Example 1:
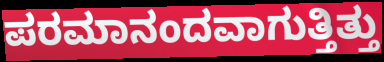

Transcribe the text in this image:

ಪರಮಾನಂದವಾಗುತ್ತಿತ್ತು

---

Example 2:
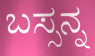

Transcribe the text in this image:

ಬಸ್ಸನ್ನ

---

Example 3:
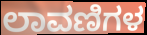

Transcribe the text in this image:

ಲಾವಣಿಗಳ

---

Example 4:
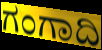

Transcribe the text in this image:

ಗಂಗಾದಿ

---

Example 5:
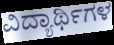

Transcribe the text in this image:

ವಿದ್ಯಾರ್ಥಿಗಳ